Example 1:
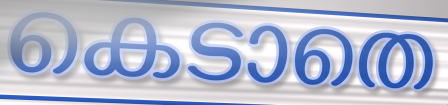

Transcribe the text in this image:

കെടാതെ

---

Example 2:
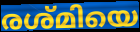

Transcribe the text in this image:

രശ്മിയെ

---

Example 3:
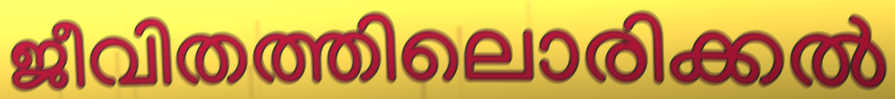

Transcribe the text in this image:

ജീവിതത്തിലൊരിക്കൽ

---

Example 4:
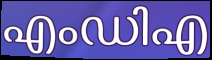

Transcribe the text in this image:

എംഡിഎ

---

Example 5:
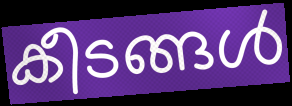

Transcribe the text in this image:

കീടങ്ങൾ